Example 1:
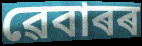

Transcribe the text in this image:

ৱেবাৰৰ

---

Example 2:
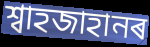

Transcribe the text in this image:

শ্বাহজাহানৰ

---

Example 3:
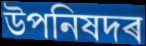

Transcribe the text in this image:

উপনিষদৰ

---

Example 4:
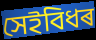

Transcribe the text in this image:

সেইবিধৰ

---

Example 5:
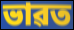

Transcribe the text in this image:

ভাৱত